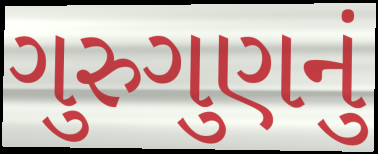
ગુરુગુણનું